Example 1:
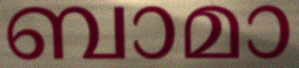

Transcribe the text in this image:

ബാമാ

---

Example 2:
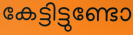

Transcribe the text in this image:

കേട്ടിട്ടുണ്ടോ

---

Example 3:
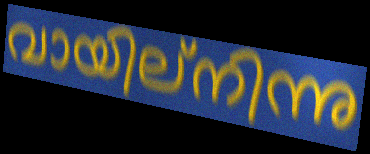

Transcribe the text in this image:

വായില്നിന്നു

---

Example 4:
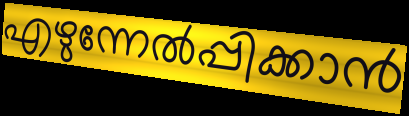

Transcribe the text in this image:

എഴുന്നേൽപ്പിക്കാൻ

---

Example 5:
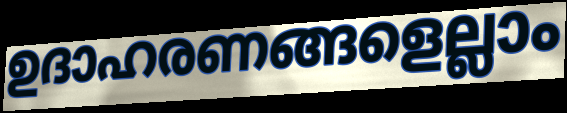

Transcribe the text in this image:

ഉദാഹരണങ്ങളെല്ലാം